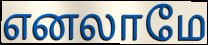
எனலாமே